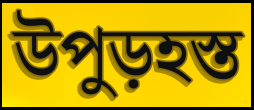
উপুড়হস্ত